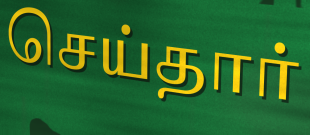
செய்தார்